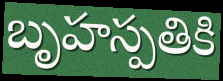
బృహస్పతికి